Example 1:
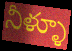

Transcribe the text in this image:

నీళ్ళూ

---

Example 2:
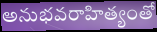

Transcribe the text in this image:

అనుభవరాహిత్యంతో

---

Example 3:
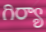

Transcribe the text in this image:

గిర్యా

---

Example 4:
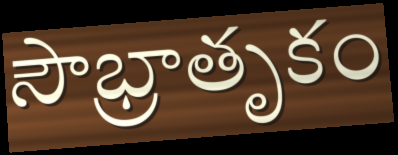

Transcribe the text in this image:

సౌభ్రాతృకం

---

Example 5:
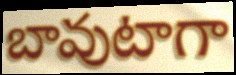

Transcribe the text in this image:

బావుటాగా